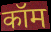
कॉम